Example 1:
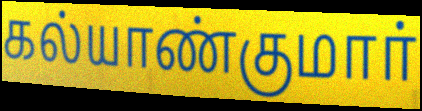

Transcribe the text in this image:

கல்யாண்குமார்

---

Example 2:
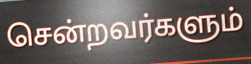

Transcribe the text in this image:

சென்றவர்களும்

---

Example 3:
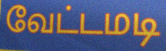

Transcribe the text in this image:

வேட்டமடி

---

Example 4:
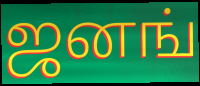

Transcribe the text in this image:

ஜனங்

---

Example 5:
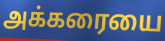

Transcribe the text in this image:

அக்கரையை